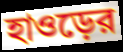
হাওড়ের